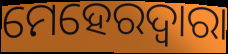
ମେହେରଦ୍ୱାରା